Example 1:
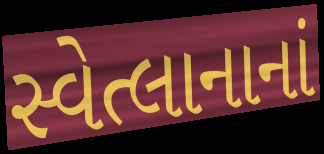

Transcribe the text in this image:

સ્વેત્લાનાનાં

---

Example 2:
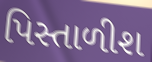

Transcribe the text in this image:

પિસ્તાળીશ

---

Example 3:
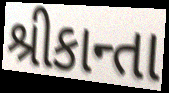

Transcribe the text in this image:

શ્રીકાન્તા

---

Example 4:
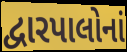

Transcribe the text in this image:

દ્વારપાલોનાં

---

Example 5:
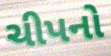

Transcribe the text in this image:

ચીપનો